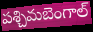
పశ్చిమబెంగాల్